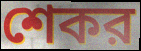
শেকর